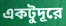
একটুদূরে